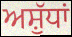
ਅਸ਼ੁੱਧਾਂ